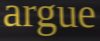
argue